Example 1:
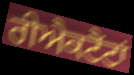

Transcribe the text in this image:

ਰੀਐਕਟੈਂਟਾਂ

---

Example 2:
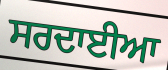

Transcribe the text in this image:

ਸਰਦਾਈਆ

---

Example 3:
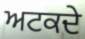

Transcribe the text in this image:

ਅਟਕਦੇ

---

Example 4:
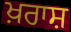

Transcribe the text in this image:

ਖ਼ਰਾਸ਼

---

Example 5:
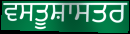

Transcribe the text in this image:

ਵਸਤੂਸ਼ਾਸਤਰ